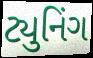
ટ્યુનિંગ